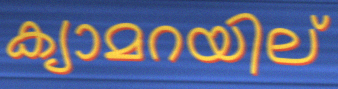
ക്യാമറയില്